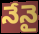
నేనై